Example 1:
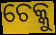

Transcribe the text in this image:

ଚେକ୍କୁ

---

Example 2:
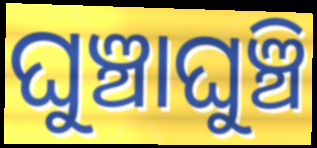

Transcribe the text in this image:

ଘୁଞ୍ଚାଘୁଞ୍ଚି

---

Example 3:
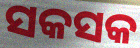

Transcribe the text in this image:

ସକସକ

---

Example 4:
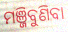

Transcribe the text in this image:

ମଞ୍ଜିବୁଣିବା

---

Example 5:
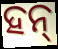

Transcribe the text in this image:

ହନ୍